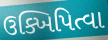
ઉક્ખિપિત્વા